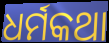
ଧର୍ମକଥା